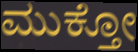
ಮುಕ್ತೋ